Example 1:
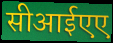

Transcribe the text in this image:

सीआईएए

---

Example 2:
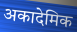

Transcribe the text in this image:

अकादेमिक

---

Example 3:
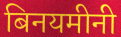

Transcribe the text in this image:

बिनयमीनी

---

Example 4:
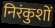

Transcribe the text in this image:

निरंकुशों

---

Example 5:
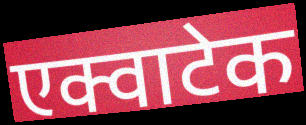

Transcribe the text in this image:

एक्वाटेक